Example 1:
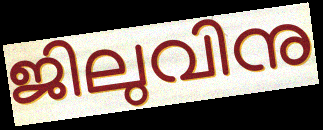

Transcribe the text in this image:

ജിലുവിനു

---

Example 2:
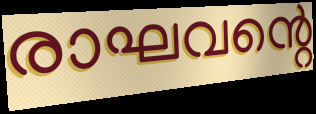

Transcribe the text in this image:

രാഘവന്റെ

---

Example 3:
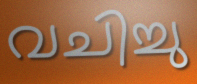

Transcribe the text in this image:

വചിച്ചു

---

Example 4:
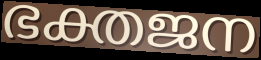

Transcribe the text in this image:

ഭക്തജന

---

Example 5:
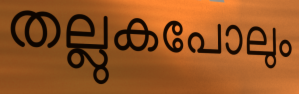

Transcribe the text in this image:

തല്ലുകപോലും